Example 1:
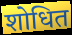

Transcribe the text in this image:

शोधित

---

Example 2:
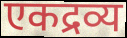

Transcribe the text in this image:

एकद्रव्य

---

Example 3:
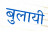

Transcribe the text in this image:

बुलायी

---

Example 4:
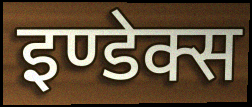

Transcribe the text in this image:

इण्डेक्स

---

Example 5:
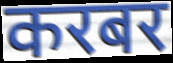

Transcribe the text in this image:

करबर